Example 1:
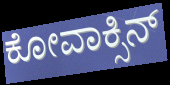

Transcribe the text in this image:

ಕೋವಾಕ್ಸಿನ್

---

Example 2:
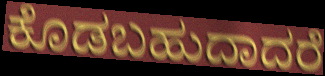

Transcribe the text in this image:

ಕೊಡಬಹುದಾದರೆ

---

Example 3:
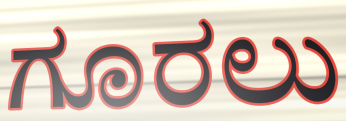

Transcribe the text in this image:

ಗೂರಲು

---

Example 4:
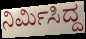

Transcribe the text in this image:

ನಿರ್ಮಿಸಿದ್ದ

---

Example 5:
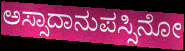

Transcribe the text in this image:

ಅಸ್ಸಾದಾನುಪಸ್ಸಿನೋ